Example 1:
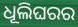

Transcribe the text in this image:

ଧୂଲିଘରର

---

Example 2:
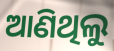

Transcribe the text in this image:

ଆଣିଥିଲୁ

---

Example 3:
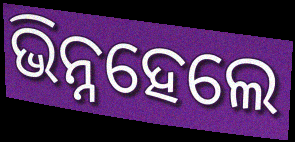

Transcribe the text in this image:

ଭିନ୍ନହେଲେ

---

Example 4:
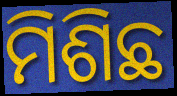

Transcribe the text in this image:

ମିଶିଛ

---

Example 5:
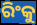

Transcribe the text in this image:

ରିଂକୁ